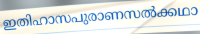
ഇതിഹാസപുരാണസൽക്കഥാ